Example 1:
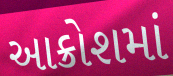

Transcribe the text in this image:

આક્રોશમાં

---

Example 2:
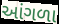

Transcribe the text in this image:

આંગળા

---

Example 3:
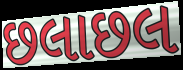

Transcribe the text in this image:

છલાછલ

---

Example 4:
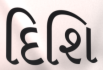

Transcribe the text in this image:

દિશિ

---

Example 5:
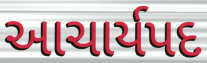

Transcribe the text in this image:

આચાર્યપદ